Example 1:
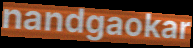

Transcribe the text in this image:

nandgaokar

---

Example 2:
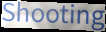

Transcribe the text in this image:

Shooting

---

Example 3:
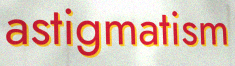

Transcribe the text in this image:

astigmatism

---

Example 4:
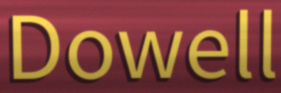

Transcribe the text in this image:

Dowell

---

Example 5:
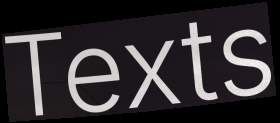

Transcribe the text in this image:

Texts